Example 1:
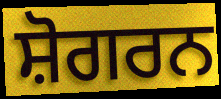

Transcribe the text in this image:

ਸ਼ੋਗਰਨ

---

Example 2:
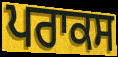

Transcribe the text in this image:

ਪਰਾਕਸ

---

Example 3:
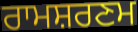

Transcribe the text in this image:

ਰਾਮਸ਼ਰਣਮ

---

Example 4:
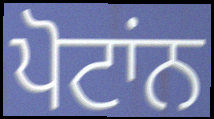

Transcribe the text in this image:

ਪੋਟਾਂਨ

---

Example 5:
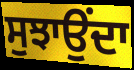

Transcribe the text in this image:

ਸੁਝਾਉਂਦਾ